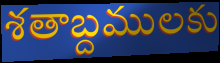
శతాబ్దములకు